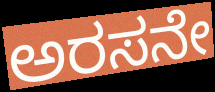
ಅರಸನೇ